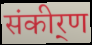
संकीर्ण